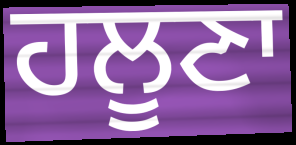
ਹਲੂਣਾ